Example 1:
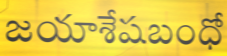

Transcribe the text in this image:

జయాశేషబంధో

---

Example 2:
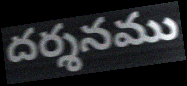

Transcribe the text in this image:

దర్శనము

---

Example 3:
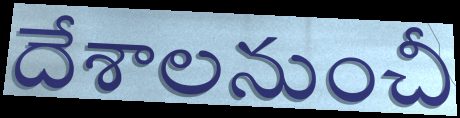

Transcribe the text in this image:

దేశాలనుంచీ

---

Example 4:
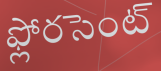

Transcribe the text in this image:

ఫ్లోరసెంట్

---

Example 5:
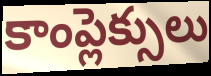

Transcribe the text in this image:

కాంప్లెక్సులు